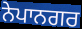
ਨੇਪਾਨਗਰ